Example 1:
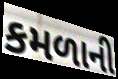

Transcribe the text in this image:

કમળાની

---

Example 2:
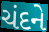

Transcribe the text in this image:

ચંદને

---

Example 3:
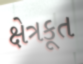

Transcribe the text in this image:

ક્ષેત્રકૂત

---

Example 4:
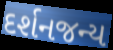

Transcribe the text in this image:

દર્શનજન્ય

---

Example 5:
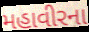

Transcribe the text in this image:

મહાવીરના